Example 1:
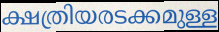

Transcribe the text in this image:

ക്ഷത്രിയരടക്കമുള്ള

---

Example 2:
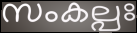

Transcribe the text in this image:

സംകല്പഃ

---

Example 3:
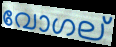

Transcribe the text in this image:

വോഗല്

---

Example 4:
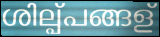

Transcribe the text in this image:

ശില്പ്പങ്ങള്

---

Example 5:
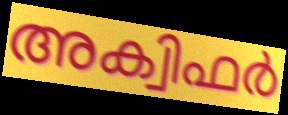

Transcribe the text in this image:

അക്വിഫർ